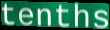
tenths